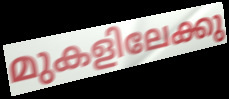
മുകളിലേക്കു